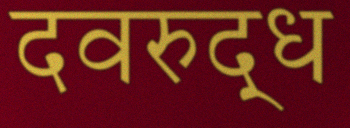
दवरुद्ध